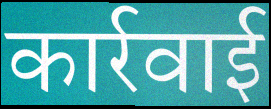
कार्रवाई